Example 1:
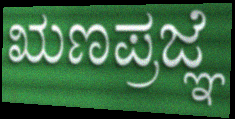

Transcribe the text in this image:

ಋಣಪ್ರಜ್ಞೆ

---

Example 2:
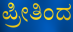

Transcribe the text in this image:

ಪ್ರೀತಿಂದ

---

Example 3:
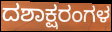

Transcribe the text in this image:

ದಶಾಕ್ಷರಂಗಳ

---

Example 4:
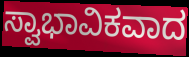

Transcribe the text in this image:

ಸ್ವಾಭಾವಿಕವಾದ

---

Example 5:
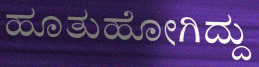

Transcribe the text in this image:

ಹೂತುಹೋಗಿದ್ದು